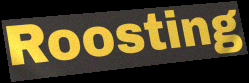
Roosting